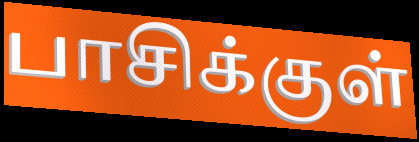
பாசிக்குள்